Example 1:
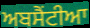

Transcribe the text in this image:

ਅਬਸੈਂਟੀਆ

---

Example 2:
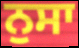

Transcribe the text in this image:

ਨੁਸਾ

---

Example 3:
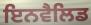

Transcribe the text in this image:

ਇਨਵੈਲਿਡ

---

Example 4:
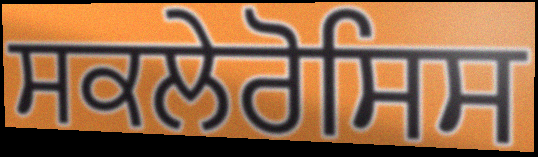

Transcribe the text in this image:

ਸਕਲੇਰੋਸਿਸ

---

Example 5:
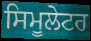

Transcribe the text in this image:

ਸਿਮੂਲੇਟਰ